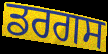
ਡਰਗਸ